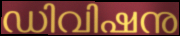
ഡിവിഷനു